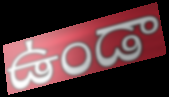
ఉండా